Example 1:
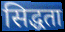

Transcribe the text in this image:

सिद्धता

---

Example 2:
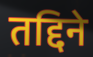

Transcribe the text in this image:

तद्दिने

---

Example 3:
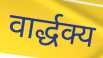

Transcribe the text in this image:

वार्द्धक्य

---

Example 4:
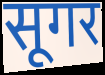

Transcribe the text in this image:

सूगर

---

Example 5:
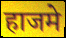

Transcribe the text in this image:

हाजमे